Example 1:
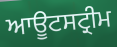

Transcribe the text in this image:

ਆਊਟਸਟ੍ਰੀਮ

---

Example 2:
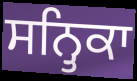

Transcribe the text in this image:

ਸਨ੍ਤਿਕਾ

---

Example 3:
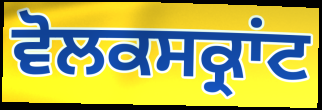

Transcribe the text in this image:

ਵੋਲਕਸਕ੍ਰਾਂਟ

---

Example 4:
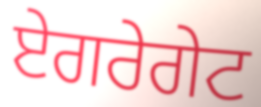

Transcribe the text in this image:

ਏਗਰੇਗੇਟ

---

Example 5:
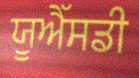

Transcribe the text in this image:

ਯੂਐੱਸਡੀ